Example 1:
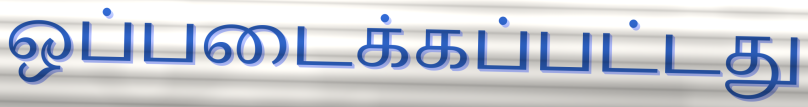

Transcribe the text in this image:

ஒப்படைக்கப்பட்டது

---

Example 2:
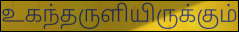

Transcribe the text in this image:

உகந்தருளியிருக்கும்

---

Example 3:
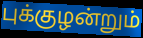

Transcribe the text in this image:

புக்குழன்றும்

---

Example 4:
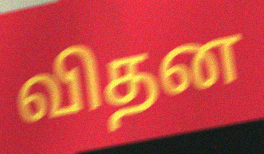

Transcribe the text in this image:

விதன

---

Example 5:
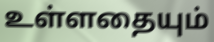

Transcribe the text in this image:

உள்ளதையும்